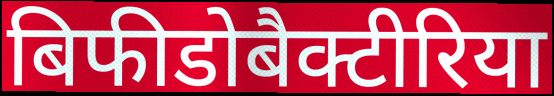
बिफीडोबैक्टीरिया